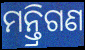
ମନ୍ତ୍ରିଗଣ